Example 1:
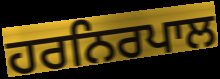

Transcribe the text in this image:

ਹਰਨਿਰਪਾਲ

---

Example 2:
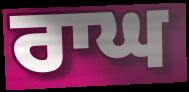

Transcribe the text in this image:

ਰਾਘ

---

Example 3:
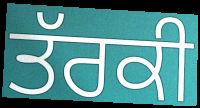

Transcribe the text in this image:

ਤੱਰਕੀ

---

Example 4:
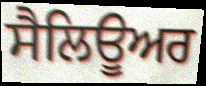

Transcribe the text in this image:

ਸੈਲਿਊਅਰ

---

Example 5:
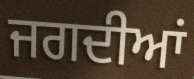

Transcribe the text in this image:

ਜਗਦੀਆਂ